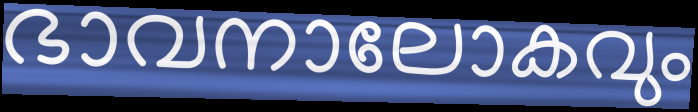
ഭാവനാലോകവും